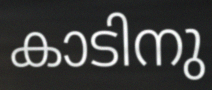
കാടിനു